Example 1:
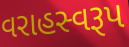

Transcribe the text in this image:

વરાહસ્વરૂપ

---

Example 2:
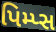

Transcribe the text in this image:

પિમ્પ્સ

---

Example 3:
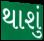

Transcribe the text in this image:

થાશું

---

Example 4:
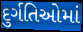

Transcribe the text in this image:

દુર્ગતિઓમાં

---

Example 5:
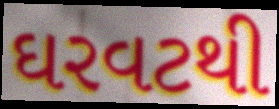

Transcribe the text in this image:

ઘરવટથી